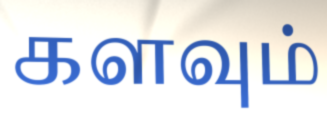
களவும்